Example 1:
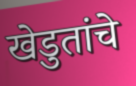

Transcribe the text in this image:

खेडुतांचे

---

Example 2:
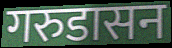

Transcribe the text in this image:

गरुडासन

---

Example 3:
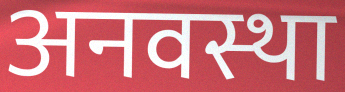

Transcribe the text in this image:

अनवस्था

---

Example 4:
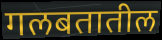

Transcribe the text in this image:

गलबतातील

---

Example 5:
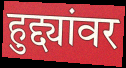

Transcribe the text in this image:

हुद्द्यांवर